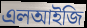
এলআইজি